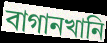
বাগানখানি